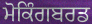
ਮੋਕਿੰਗਬਰਡ